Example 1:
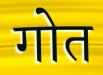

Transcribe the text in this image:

गोत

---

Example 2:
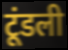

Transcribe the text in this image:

टूंडली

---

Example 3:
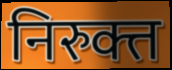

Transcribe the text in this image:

निरुक्त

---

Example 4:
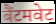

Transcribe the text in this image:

बैंटमवेट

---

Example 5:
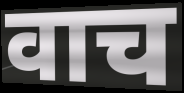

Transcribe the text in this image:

वाच